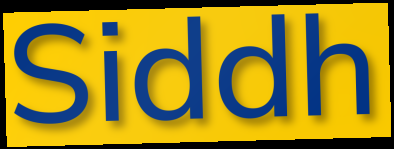
Siddh